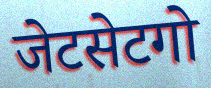
जेटसेटगो